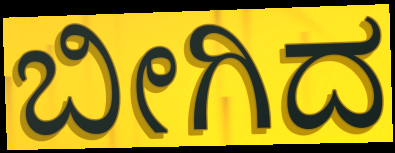
ಬೀಗಿದ